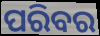
ପରିବର